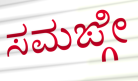
ಸಮಙ್ಗೀ